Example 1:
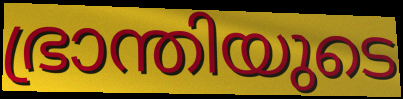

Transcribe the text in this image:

ഭ്രാന്തിയുടെ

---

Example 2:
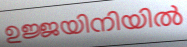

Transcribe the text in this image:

ഉജ്ജയിനിയിൽ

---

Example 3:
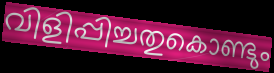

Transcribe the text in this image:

വിളിപ്പിച്ചതുകൊണ്ടും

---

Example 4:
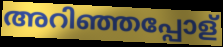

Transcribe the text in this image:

അറിഞ്ഞപ്പോള്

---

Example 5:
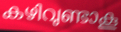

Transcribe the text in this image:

കഴിവുണ്ടാകൂ